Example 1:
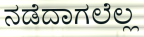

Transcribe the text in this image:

ನಡೆದಾಗಲೆಲ್ಲ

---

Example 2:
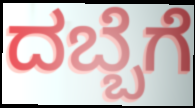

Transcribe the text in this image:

ದಬ್ಬೆಗೆ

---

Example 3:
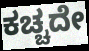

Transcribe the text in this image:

ಕಚ್ಚದೇ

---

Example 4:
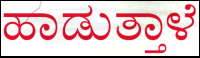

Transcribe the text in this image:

ಹಾಡುತ್ತಾಳೆ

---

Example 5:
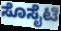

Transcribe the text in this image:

ಸೊಸೈಟಿ